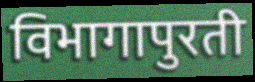
विभागापुरती